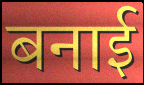
बनाई